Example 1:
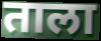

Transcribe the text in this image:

ताला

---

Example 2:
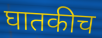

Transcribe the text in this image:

घातकीच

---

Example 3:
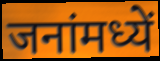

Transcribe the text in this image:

जनांमध्यें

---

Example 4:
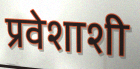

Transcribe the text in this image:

प्रवेशाशी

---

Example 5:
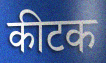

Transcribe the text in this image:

कीटक